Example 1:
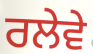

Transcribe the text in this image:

ਰਲੇਵੇ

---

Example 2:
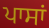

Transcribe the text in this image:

ਪਾਸਾਂ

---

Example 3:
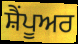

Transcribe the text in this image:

ਸ਼ੈਂਪੂਅਰ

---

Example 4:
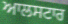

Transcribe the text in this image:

ਆਲਸਟਾਰ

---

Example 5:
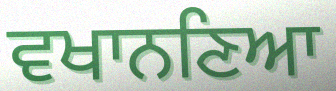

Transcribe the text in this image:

ਵਖਾਨਣਿਆ